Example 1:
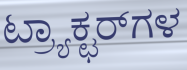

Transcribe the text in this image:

ಟ್ರ್ಯಾಕ್ಟರ್‌ಗಳ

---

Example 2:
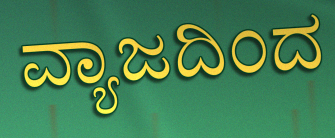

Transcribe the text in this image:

ವ್ಯಾಜದಿಂದ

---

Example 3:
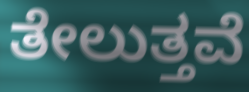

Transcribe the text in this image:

ತೇಲುತ್ತವೆ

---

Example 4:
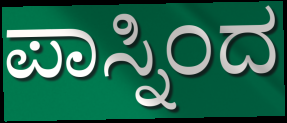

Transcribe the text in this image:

ಪಾಸ್ನಿಂದ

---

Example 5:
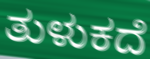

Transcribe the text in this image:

ತುಳುಕದೆ